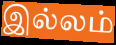
இல்லம்